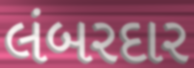
લંબરદાર